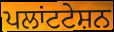
ਪਲਾਂਟਟੇਸ਼ਨ